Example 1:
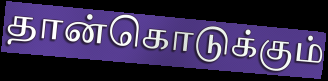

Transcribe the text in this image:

தான்கொடுக்கும்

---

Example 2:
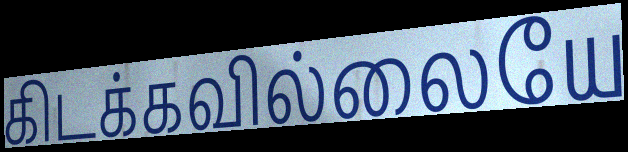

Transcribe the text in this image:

கிடக்கவில்லையே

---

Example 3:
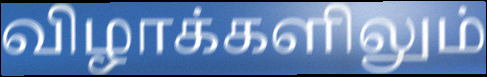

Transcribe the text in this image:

விழாக்களிலும்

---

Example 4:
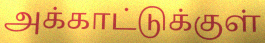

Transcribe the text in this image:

அக்காட்டுக்குள்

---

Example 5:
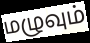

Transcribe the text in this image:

மழுவும்